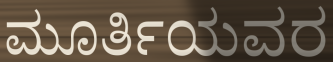
ಮೂರ್ತಿಯವರ